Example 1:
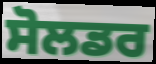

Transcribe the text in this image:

ਸੋਲਡਰ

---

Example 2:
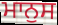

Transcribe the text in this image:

ਮਾਨੁਸ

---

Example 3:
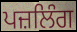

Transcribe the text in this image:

ਪਜ਼ਲਿੰਗ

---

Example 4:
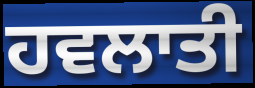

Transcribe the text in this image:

ਹਵਲਾਤੀ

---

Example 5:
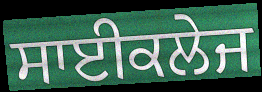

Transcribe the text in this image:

ਸਾਈਕਲੇਜ